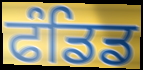
ਫੰਡਿਡ